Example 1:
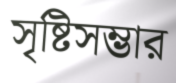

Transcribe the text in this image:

সৃষ্টিসম্ভার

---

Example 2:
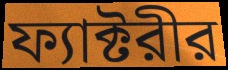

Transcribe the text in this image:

ফ্যাক্টরীর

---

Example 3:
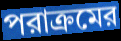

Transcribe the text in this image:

পরাক্রমের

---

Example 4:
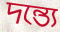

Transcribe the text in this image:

দন্ত্যে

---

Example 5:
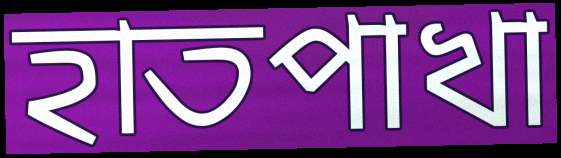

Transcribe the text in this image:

হাতপাখা